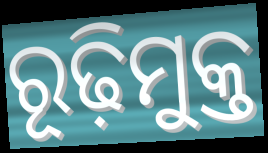
ରୂଢ଼ିମୁକ୍ତ